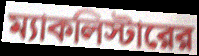
ম্যাকলিস্টারের